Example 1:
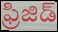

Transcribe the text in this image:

ఫ్రిజిడ్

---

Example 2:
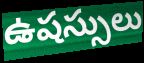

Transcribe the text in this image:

ఉషస్సులు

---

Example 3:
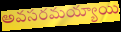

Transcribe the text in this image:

అవసరమయ్యాయి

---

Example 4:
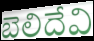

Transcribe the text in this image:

బెలిదేవి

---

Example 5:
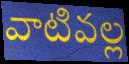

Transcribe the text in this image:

వాటివల్ల